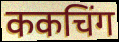
ककचिंग